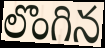
లొంగిన